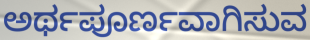
ಅರ್ಥಪೂರ್ಣವಾಗಿಸುವ